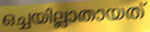
ഒച്ചയില്ലാതായത്